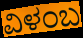
ವಿಳಂಬ